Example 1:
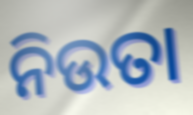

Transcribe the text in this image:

ନିଉତା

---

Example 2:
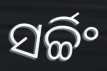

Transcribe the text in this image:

ସର୍ଚ୍ଚିଂ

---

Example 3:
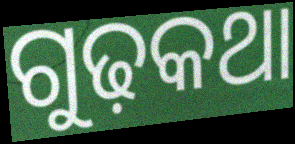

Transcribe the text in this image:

ଗୁଢ଼କଥା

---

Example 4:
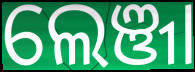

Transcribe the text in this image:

ଲେଞ୍ଜା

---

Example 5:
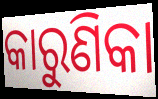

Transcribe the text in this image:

କାରୁଣିକା